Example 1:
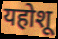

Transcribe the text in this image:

यहोशू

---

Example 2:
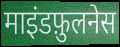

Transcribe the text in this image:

माइंडफ़ुलनेस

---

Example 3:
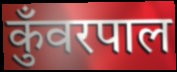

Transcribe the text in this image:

कुँवरपाल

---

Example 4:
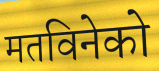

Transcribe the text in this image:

मतविनेको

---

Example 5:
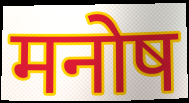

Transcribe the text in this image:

मनोष